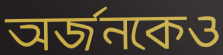
অর্জনকেও